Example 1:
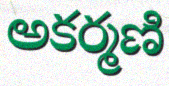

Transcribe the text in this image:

అకర్మణి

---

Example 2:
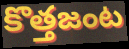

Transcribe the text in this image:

కొత్తజంట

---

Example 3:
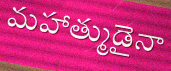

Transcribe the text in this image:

మహాత్ముడైనా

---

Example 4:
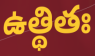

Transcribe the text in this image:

ఉత్థితః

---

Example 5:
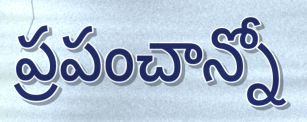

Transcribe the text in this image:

ప్రపంచాన్నో